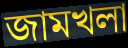
জামখলা